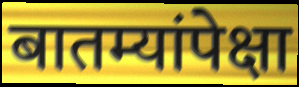
बातम्यांपेक्षा